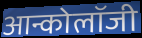
आन्कोलॉजी